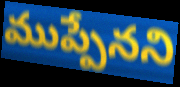
ముప్పేనని